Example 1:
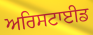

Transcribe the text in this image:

ਅਰਿਸਟਾਈਡ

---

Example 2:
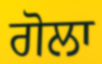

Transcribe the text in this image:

ਗੋਲਾ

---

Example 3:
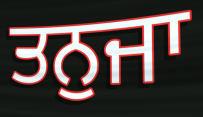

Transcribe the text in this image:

ਤਨੁਜਾ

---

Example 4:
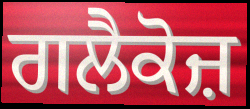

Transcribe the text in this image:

ਗਲੈਕੋਜ਼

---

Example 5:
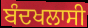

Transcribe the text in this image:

ਬੰਦਖਲਾਸੀ